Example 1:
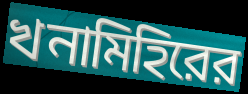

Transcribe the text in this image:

খনামিহিরের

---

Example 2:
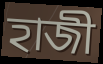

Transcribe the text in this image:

হাজী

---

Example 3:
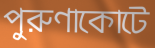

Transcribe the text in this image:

পুরুণাকোটে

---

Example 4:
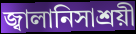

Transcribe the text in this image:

জ্বালানিসাশ্রয়ী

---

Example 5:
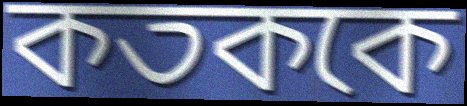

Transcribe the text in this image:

কতককে